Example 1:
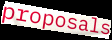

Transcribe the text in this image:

proposals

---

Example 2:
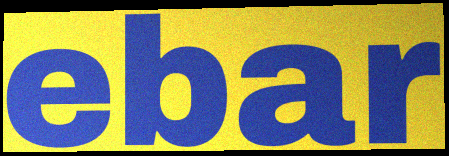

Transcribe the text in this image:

ebar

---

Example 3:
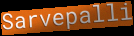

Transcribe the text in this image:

Sarvepalli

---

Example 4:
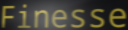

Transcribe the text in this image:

Finesse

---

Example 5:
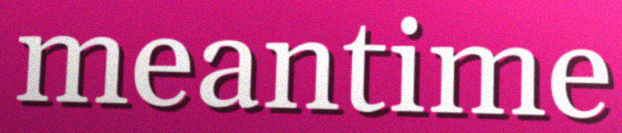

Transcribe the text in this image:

meantime